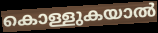
കൊള്ളുകയാൽ